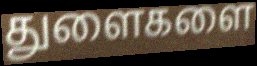
துளைகளை